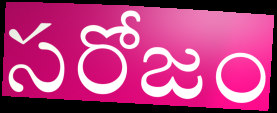
సరోజం